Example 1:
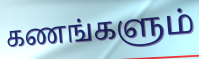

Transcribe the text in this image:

கணங்களும்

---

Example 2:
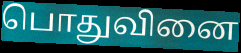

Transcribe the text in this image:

பொதுவினை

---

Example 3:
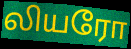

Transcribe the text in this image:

லியரோ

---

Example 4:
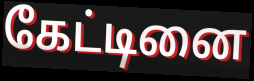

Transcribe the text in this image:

கேட்டினை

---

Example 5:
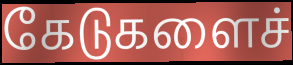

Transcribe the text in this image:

கேடுகளைச்